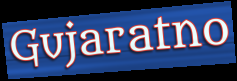
Gujaratno